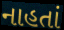
નાહતાં